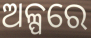
ଅଳ୍ପରେ